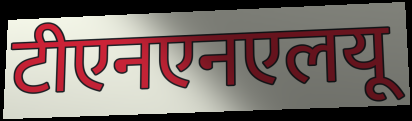
टीएनएनएलयू